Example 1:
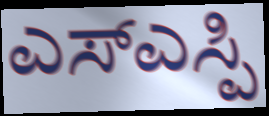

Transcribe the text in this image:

ಎಸ್ಎಸ್ಪಿ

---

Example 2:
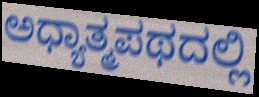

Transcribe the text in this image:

ಅಧ್ಯಾತ್ಮಪಥದಲ್ಲಿ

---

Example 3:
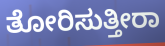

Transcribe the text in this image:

ತೋರಿಸುತ್ತೀರಾ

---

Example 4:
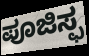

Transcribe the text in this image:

ಪೂಜಿಸ್ಫ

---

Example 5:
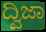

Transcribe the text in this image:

ದ್ವಿಜಾ